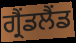
ਗ੍ਰੈਂਡਲੈਂਡ